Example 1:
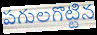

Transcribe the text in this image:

పగులగొట్టిన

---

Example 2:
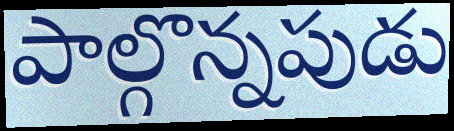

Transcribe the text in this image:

పాల్గొన్నపుడు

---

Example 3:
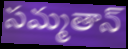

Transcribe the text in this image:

సమ్మతాన్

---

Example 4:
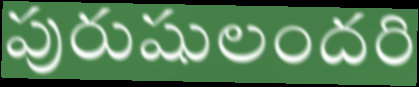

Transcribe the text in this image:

పురుషులందరి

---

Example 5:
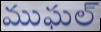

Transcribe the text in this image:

ముఘల్